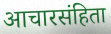
आचारसंहिता